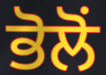
ਭੋਲੋਂ